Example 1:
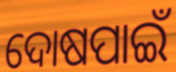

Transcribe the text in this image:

ଦୋଷପାଇଁ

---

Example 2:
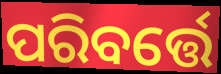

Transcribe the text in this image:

ପରିବର୍ତ୍ତେ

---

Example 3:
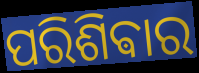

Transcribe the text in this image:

ପରିଶିଵାର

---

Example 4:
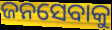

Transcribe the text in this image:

ଜନସେବାକୁ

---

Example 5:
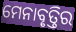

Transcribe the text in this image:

ମେନାବୃତ୍ତିର